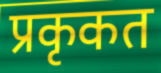
प्रकृकत